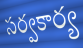
సర్వకార్య